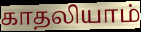
காதலியாம்